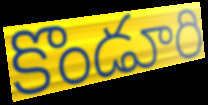
కొండూరి